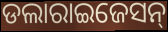
ଡଲାରାଇଜେସନ୍